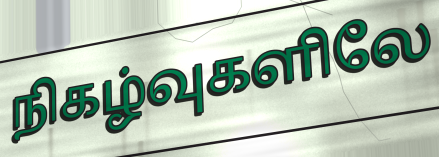
நிகழ்வுகளிலே